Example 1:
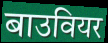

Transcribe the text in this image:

बाउवियर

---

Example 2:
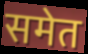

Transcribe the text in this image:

समेत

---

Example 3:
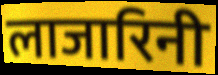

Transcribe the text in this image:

लाजारिनी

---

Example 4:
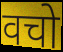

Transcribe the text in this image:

वचो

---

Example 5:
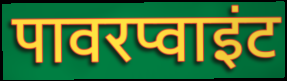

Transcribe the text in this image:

पावरप्वाइंट